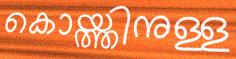
കൊയ്ത്തിനുള്ള